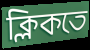
ক্লিকতে